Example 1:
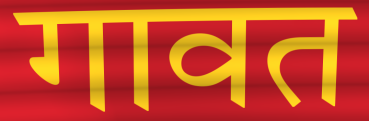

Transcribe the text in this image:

गावत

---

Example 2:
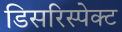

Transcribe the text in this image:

डिसरिस्पेक्ट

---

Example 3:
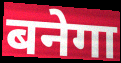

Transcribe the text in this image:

बनेगा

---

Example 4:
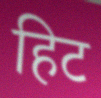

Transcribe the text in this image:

हिट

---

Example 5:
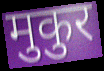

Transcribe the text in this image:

मुकुर